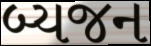
બ્યજન